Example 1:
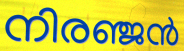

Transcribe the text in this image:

നിരഞ്ജൻ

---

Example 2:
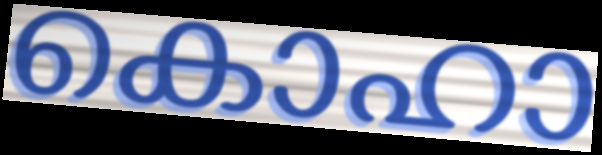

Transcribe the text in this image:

കൊഹാ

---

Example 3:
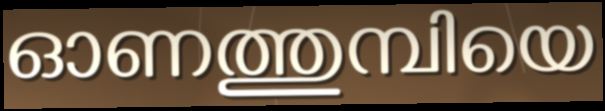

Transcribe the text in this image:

ഓണത്തുമ്പിയെ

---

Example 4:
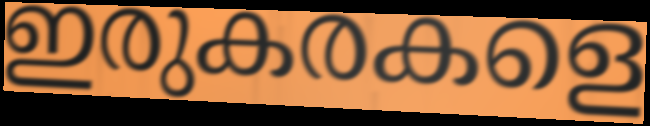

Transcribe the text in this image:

ഇരുകരകളെ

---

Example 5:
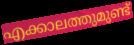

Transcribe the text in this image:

എക്കാലത്തുമുണ്ട്